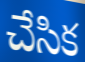
చేసిక